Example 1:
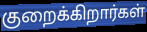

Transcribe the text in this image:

குறைக்கிறார்கள்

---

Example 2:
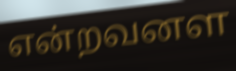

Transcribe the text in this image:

என்றவனள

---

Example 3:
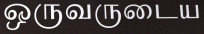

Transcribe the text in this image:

ஒருவருடைய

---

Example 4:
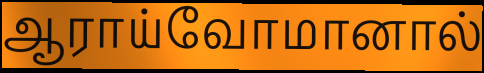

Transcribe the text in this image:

ஆராய்வோமானால்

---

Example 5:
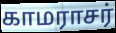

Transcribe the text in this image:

காமராசர்